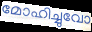
മോഹിച്ചുവോ